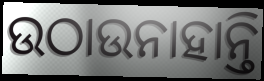
ଉଠାଉନାହାନ୍ତି